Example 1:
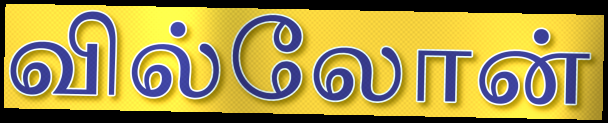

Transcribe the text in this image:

வில்லோன்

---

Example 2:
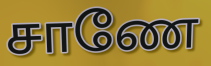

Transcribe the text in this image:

சாணே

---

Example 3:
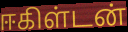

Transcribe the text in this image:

ஈகிள்டன்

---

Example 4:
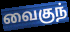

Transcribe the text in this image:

வைகுந்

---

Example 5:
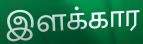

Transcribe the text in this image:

இளக்கார